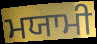
ਮਯਾਮੀ